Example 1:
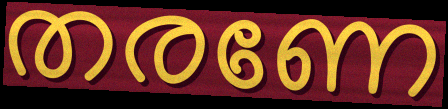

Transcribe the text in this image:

തരണേ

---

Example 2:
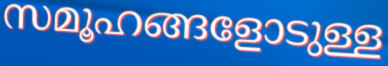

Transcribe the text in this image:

സമൂഹങ്ങളോടുള്ള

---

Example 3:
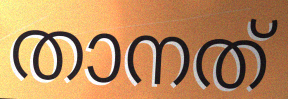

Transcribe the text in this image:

താനത്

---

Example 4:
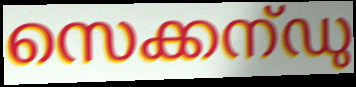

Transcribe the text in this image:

സെക്കന്ഡു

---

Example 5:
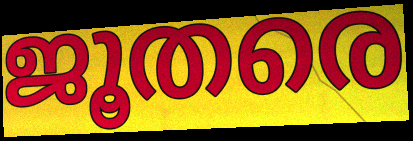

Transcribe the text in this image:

ജൂതരെ